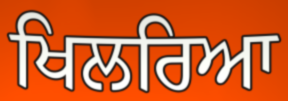
ਖਿਲਰਿਆ